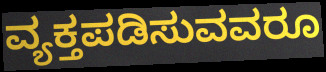
ವ್ಯಕ್ತಪಡಿಸುವವರೂ